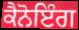
ਕੈਨੋਇੰਗ